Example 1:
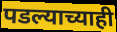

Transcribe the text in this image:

पडल्याच्याही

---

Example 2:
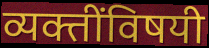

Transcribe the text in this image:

व्यक्तींविषयी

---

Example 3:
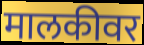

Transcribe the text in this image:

मालकीवर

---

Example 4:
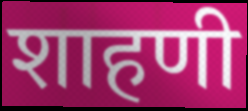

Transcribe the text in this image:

शाहणी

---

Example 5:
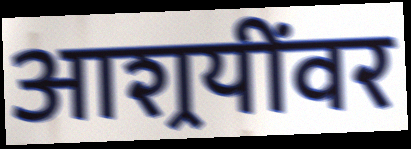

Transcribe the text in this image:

आश्रयींवर